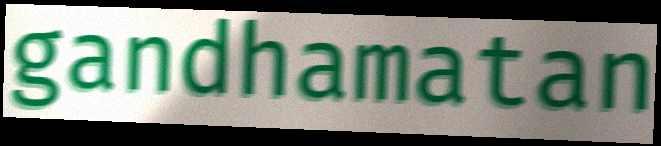
gandhamatan